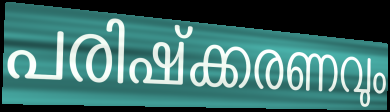
പരിഷ്ക്കരണവും